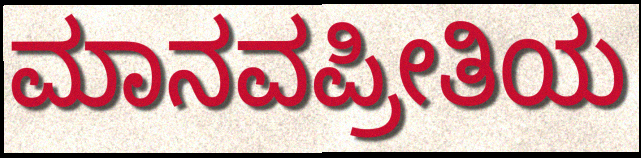
ಮಾನವಪ್ರೀತಿಯ